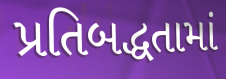
પ્રતિબદ્ધતામાં